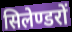
सिलेण्डरों